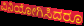
ವಿನಿಯೋಗಿಸಿದರೂ